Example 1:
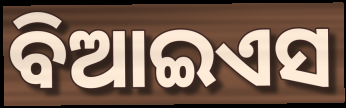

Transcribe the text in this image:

ବିଆଇଏସ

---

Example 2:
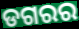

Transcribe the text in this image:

ଡଗରର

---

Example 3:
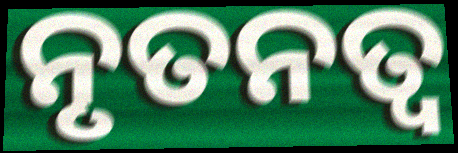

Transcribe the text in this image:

ନୃତନତ୍ୱ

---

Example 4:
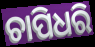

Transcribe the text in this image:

ଚାପିଧରି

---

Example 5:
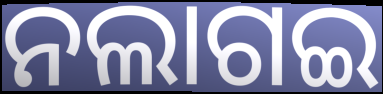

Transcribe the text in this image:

ନଲାଗଇ